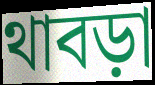
থাবড়া